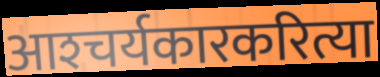
आश्‍चर्यकारकरित्या